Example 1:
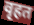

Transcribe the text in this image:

वृहत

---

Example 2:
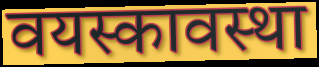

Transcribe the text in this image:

वयस्कावस्था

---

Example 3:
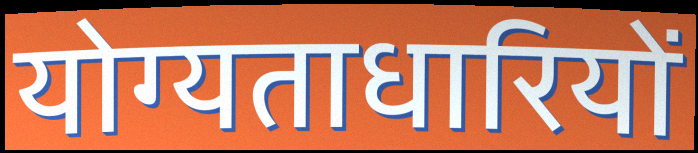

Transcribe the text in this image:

योग्यताधारियों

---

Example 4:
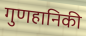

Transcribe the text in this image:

गुणहानिकी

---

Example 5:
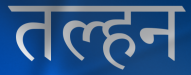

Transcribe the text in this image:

तल्हन